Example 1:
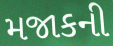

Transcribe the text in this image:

મજાકની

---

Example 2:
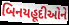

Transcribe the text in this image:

બિનયહૂદીઓને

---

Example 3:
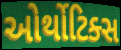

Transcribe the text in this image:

ઓર્થોટિક્સ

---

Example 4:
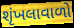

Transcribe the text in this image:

શૃંખલાવાળો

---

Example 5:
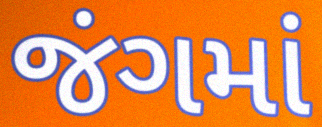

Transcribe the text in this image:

જંગમાં